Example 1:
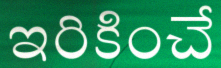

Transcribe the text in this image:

ఇరికించే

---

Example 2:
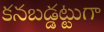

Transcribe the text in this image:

కనబడ్డట్టుగా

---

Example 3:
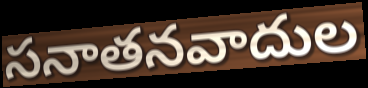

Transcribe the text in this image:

సనాతనవాదుల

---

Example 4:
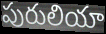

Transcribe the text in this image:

పురులియా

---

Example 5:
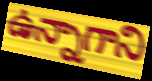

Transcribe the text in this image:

ఉన్నాగాని